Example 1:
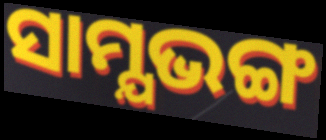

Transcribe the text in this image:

ସାମ୍ଯଭଙ୍ଗ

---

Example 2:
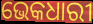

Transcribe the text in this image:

ଭେକଧାରୀ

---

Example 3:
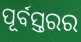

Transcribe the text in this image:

ପୂର୍ବସ୍ତରର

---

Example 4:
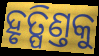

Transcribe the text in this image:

ହୃତ୍ପିଣ୍ତକୁ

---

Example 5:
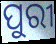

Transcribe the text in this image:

ପୁରୀ